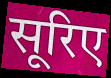
सूरिए